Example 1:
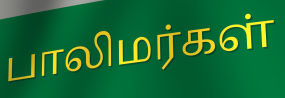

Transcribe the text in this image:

பாலிமர்கள்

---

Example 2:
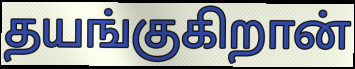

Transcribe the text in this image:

தயங்குகிறான்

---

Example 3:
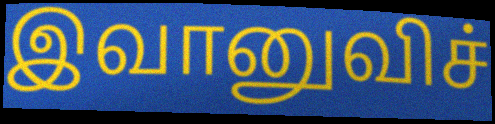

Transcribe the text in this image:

இவானுவிச்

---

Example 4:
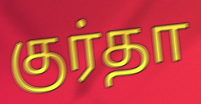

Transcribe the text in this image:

குர்தா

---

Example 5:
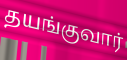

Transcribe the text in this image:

தயங்குவார்